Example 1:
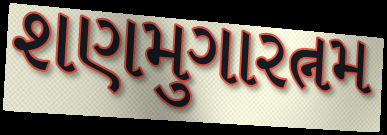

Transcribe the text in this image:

શણમુગારત્નમ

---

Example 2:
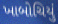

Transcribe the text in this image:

ખાબોચિયું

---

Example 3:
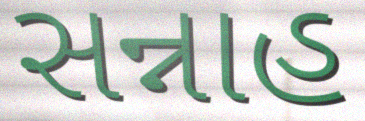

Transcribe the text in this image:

સન્નાહ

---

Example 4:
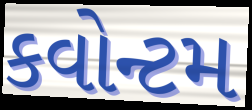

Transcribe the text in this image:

કવોન્ટમ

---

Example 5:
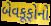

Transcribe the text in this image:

બેવકૂફોનો